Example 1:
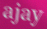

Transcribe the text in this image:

ajay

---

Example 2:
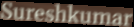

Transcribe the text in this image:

Sureshkumar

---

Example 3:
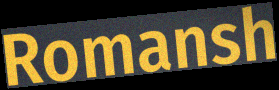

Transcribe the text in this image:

Romansh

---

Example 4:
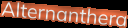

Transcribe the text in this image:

Alternanthera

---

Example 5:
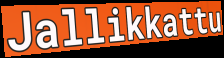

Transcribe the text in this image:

Jallikkattu